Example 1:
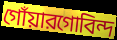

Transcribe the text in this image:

গোঁয়ারগোবিন্দ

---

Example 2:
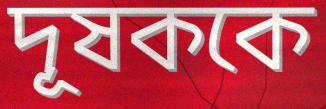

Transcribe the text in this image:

দূষককে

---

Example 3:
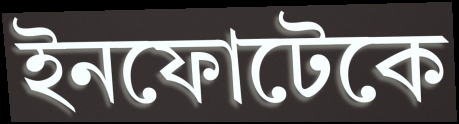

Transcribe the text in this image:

ইনফোটেকে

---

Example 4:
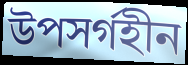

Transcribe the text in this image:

উপসর্গহীন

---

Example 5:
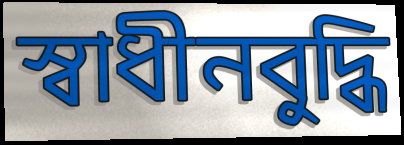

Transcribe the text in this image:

স্বাধীনবুদ্ধি